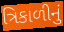
ત્રિકાળીનું